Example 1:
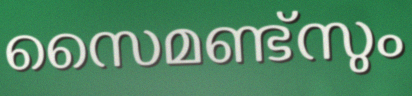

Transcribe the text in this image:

സൈമണ്ട്സും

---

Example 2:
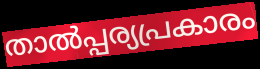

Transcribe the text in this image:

താൽപ്പര്യപ്രകാരം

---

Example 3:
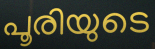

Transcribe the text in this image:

പൂരിയുടെ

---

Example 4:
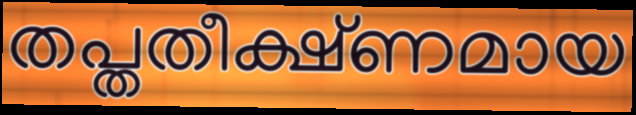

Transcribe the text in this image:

തപ്തതീക്ഷ്ണമായ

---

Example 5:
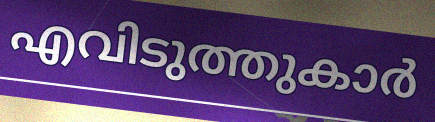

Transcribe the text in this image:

എവിടുത്തുകാർ